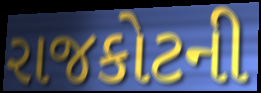
રાજકોટની